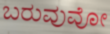
ಬರುವುವೋ